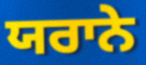
ਯਰਾਨੇ